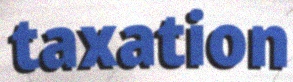
taxation